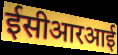
ईसीआरआई